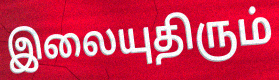
இலையுதிரும்